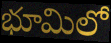
భూమిలో